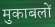
मुकाबलों